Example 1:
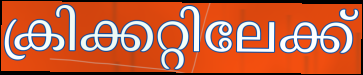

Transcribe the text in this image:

ക്രിക്കറ്റിലേക്ക്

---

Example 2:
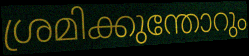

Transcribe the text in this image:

ശ്രമിക്കുന്തോറും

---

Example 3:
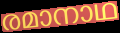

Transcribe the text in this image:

രമാനാഥ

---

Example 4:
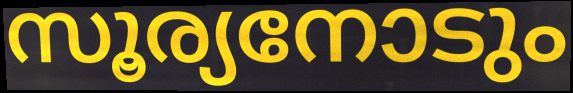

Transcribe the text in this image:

സൂര്യനോടും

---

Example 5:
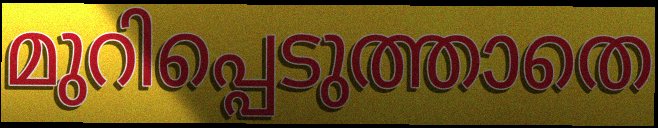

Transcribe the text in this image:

മുറിപ്പെടുത്താതെ